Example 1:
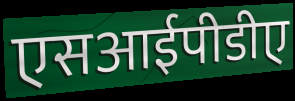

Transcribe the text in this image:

एसआईपीडीए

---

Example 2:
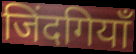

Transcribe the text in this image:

जिंदगियाँ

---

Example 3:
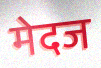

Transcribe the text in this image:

मेदज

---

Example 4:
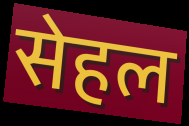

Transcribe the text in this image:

सेहल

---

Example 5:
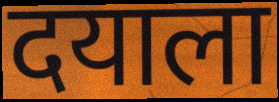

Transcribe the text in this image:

दयाला